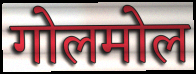
गोलमोल